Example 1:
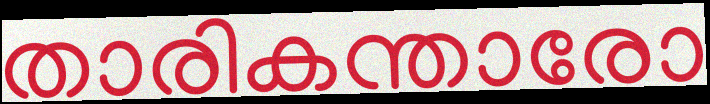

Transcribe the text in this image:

താരികന്താരോ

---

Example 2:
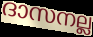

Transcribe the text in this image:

ദാസനല്ല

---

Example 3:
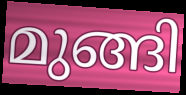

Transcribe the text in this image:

മുങ്ങി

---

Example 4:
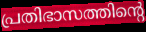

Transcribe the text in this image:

പ്രതിഭാസത്തിന്റെ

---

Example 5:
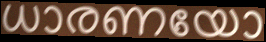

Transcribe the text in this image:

ധാരണയോ